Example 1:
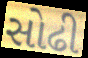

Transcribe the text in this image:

સોઢી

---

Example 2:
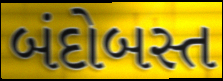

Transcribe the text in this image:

બંદોબસ્ત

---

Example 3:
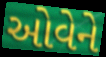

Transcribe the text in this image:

ઓવેને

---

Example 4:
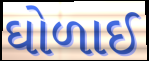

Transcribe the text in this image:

ઘોળાઈ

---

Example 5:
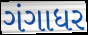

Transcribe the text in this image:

ગંગાધર